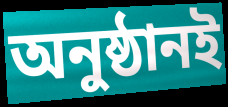
অনুষ্ঠানই